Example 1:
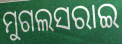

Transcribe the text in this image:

ମୁଗଲସରାଇ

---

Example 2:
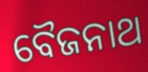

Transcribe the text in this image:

ବୈଜନାଥ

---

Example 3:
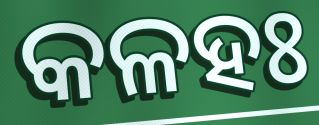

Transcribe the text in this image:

କଳହଃ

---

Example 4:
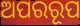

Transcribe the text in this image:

ଅପରରୂପ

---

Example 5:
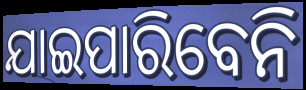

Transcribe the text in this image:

ଯାଇପାରିବେନି